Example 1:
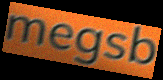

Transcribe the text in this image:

megsb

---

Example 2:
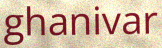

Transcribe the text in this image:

ghanivar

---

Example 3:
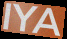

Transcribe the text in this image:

IYA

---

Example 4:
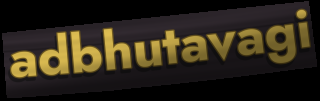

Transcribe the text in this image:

adbhutavagi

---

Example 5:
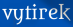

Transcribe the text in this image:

vytirek